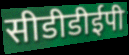
सीडीडीईपी